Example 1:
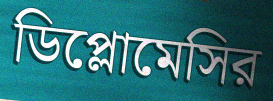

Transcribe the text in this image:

ডিপ্লোমেসির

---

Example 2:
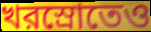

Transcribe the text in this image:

খরস্রোতেও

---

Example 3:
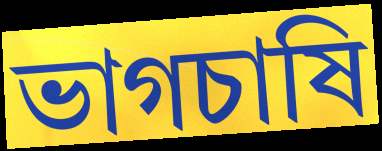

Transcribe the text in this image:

ভাগচাষি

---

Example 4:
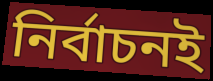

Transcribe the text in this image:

নির্বাচনই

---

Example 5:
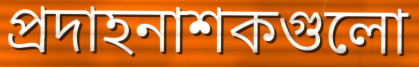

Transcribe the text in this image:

প্রদাহনাশকগুলো